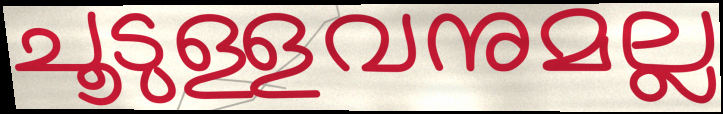
ചൂടുള്ളവനുമല്ല